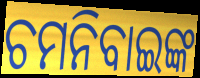
ଚମନିବାଇଙ୍କ